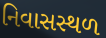
નિવાસસ્થળ